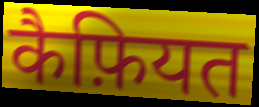
कैफ़ियत